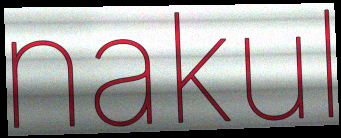
nakul